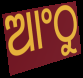
ଆଂଠୁ